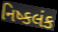
નિષ્કલંક